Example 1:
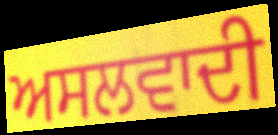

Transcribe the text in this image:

ਅਸਲਵਾਦੀ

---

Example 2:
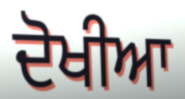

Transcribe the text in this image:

ਦੋਖੀਆ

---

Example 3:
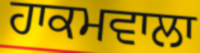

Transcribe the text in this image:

ਹਾਕਮਵਾਲਾ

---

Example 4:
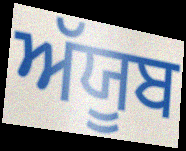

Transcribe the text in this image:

ਅੱਯੂਬ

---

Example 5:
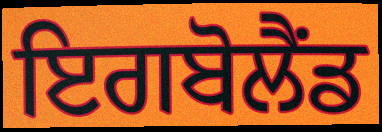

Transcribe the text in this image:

ਇਗਬੋਲੈਂਡ